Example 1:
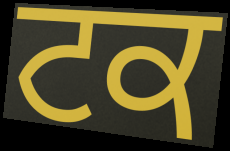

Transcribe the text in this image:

ਟਕ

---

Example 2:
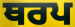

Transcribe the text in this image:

ਥਰਪ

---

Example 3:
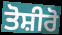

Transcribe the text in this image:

ਤੋਸ਼ੀਰੋ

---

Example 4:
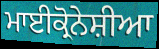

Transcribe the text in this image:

ਮਾਈਕ੍ਰੋਨੇਸ਼ੀਆ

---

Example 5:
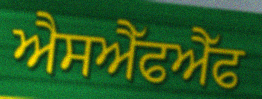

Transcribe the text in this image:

ਐਸਐੱਫਐੱਫ